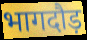
भागदौड़